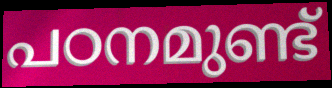
പഠനമുണ്ട്